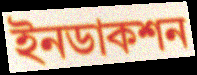
ইনডাকশন